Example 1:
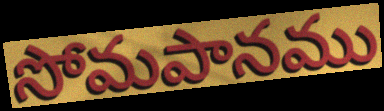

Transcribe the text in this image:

సోమపానము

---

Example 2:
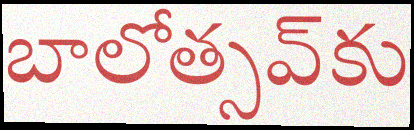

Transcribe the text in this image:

బాలోత్సవ్‌కు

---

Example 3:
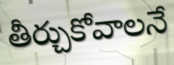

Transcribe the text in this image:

తీర్చుకోవాలనే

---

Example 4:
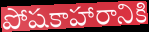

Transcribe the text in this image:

పోషకాహారానికి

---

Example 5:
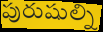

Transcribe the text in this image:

పురుషుల్ని